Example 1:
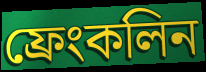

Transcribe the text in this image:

ফ্ৰেংকলিন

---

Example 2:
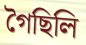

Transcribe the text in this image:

গৈছিলি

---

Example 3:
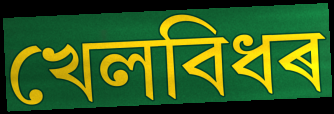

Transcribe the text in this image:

খেলবিধৰ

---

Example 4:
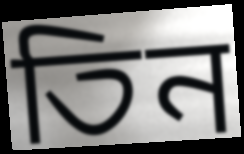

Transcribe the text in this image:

তিন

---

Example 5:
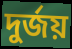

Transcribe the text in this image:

দুৰ্জয়